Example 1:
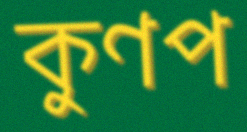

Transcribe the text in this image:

কুণপ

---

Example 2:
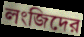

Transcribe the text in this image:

লংজিদের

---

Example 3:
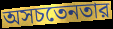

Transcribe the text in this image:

অসচতেনতার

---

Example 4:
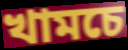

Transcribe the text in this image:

খামচে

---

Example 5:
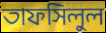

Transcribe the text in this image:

তাফসিলুল